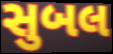
સુબલ